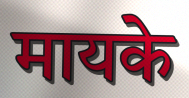
मायके